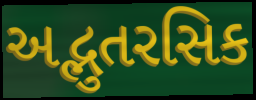
અદ્ભુતરસિક